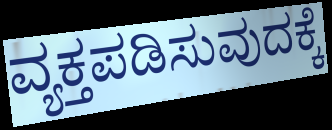
ವ್ಯಕ್ತಪಡಿಸುವುದಕ್ಕೆ